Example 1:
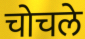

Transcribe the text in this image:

चोचले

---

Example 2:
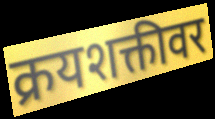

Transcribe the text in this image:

क्रयशक्तीवर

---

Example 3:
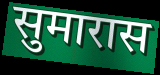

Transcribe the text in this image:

सुमारास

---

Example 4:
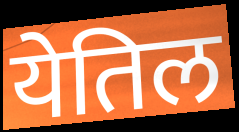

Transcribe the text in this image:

येतिल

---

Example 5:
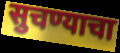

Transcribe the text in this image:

सुचण्याचा